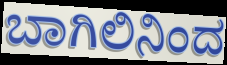
ಬಾಗಿಲಿನಿಂದ